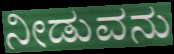
ನೀಡುವನು